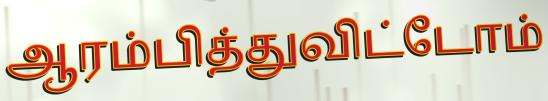
ஆரம்பித்துவிட்டோம்